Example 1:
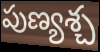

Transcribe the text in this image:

పుణ్యశ్చ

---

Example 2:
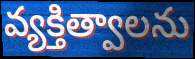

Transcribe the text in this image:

వ్యక్తిత్వాలను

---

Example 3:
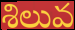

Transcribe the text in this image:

శిలువ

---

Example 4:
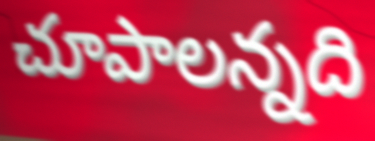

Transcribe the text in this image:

చూపాలన్నది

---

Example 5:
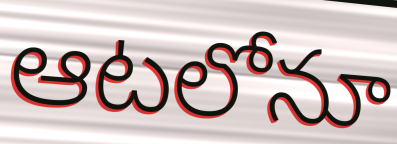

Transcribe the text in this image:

ఆటలోనూ